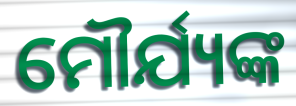
ମୌର୍ଯ୍ୟଙ୍କ